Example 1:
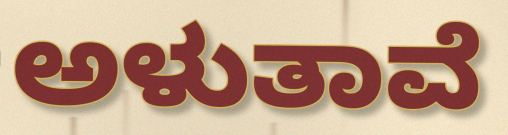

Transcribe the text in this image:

ಅಳುತಾವೆ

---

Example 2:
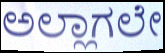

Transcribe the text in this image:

ಅಲ್ಲಾಗಲೇ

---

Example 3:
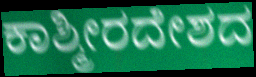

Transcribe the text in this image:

ಕಾಶ್ಮೀರದೇಶದ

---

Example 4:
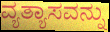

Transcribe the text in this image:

ವ್ಯತ್ಯಾಸವನ್ನು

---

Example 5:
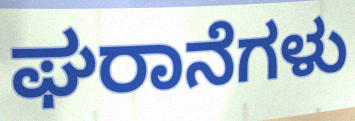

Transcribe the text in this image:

ಘರಾನೆಗಳು